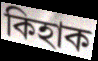
কিহাক